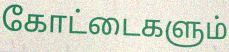
கோட்டைகளும்